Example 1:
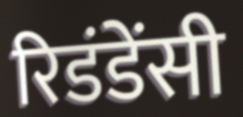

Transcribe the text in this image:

रिडंडेंसी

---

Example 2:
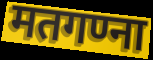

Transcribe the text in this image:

मतगण्ना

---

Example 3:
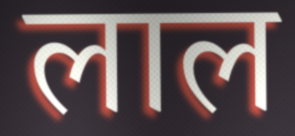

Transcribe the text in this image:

लाल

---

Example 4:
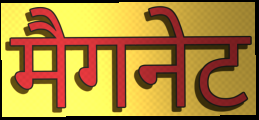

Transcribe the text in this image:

मैगनेट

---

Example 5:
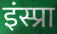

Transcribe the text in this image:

इंस्प्रा